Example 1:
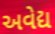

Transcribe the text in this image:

અવેદ્ય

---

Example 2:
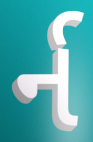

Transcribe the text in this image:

ર્ન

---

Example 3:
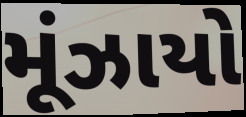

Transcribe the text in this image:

મૂંઝાયો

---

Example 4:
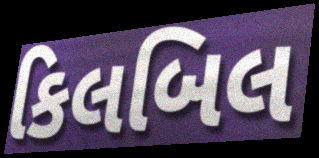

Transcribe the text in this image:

કિલબિલ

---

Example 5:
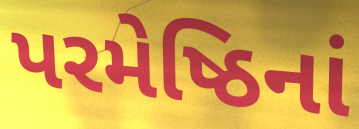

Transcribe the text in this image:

પરમેષ્ઠિનાં